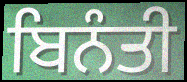
ਬਿਨੰਤੀ